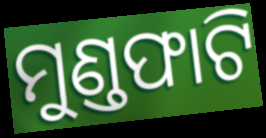
ମୁଣ୍ଡଫାଟି